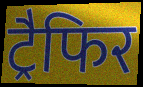
ट्रैफिर